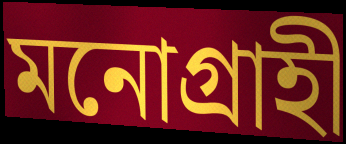
মনোগ্ৰাহী